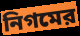
নিগমের